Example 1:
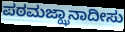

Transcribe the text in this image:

ಪಠಮಜ್ಝಾನಾದೀಸು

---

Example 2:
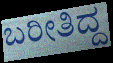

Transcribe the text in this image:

ಬರೀತಿದ್ದ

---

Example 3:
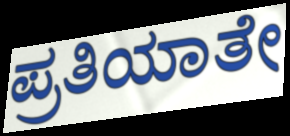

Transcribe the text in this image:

ಪ್ರತಿಯಾತೇ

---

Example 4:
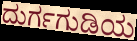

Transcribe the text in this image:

ದುರ್ಗಗುಡಿಯ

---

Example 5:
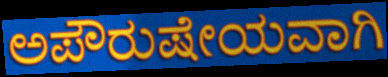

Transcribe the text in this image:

ಅಪೌರುಷೇಯವಾಗಿ